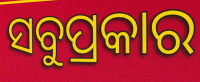
ସବୁପ୍ରକାର